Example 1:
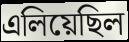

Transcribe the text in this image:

এলিয়েছিল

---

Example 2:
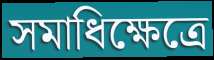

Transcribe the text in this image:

সমাধিক্ষেত্রে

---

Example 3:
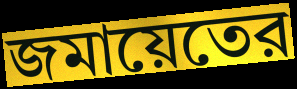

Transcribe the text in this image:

জমায়েতের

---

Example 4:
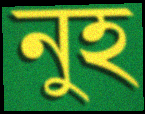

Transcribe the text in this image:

নুহ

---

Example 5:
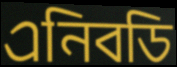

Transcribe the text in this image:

এনিবডি